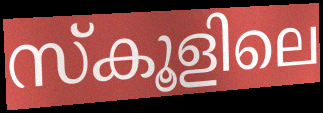
സ്കൂളിലെ